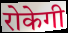
रोकेगी